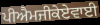
ਪੀਐਮਜੀਕੇਏਵਾਈ